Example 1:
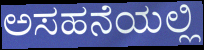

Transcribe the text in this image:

ಅಸಹನೆಯಲ್ಲಿ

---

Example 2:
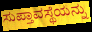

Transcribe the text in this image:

ಸುಪ್ತಾವಸ್ಥೆಯನ್ನು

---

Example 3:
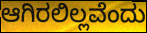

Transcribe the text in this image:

ಆಗಿರಲಿಲ್ಲವೆಂದು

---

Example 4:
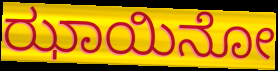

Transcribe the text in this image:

ಝಾಯಿನೋ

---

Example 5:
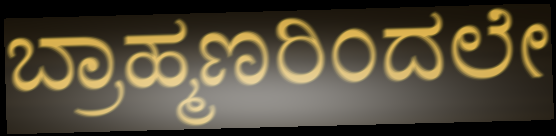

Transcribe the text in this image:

ಬ್ರಾಹ್ಮಣರಿಂದಲೇ